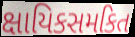
ક્ષાયિકસમકિત